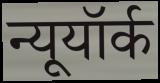
न्यूयॉर्क